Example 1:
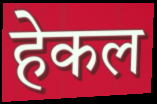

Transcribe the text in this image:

हेकल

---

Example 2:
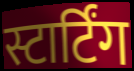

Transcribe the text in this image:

स्टार्टिंग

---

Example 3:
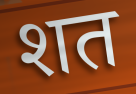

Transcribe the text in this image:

शत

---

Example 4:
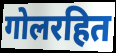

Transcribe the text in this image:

गोलरहित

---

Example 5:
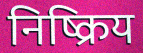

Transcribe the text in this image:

निष्क्रिय